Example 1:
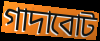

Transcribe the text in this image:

গাদাবোট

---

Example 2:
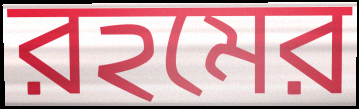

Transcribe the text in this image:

রহমের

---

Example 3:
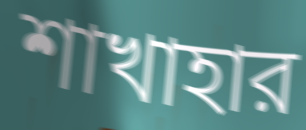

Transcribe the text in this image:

শাখাহার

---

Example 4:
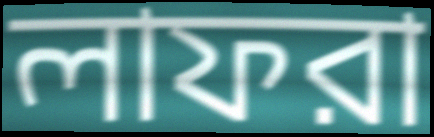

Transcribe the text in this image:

লাফরা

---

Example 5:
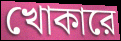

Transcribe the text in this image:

খোকারে